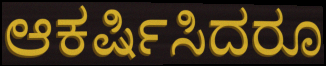
ಆಕರ್ಷಿಸಿದರೂ